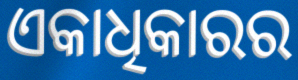
ଏକାଧିକାରର